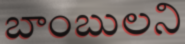
బాంబులని